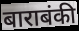
बाराबंकी